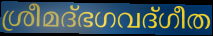
ശ്രീമദ്ഭഗവദ്ഗീത